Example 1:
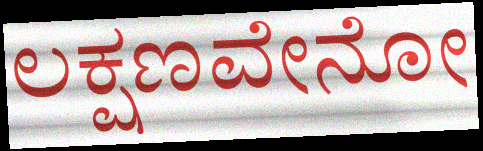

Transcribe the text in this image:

ಲಕ್ಷಣವೇನೋ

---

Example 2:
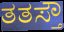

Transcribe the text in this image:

ತತಸ್ತೌ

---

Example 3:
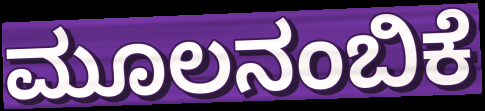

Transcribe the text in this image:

ಮೂಲನಂಬಿಕೆ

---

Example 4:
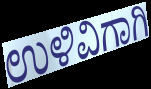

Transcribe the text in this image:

ಉಳಿವಿಗಾಗಿ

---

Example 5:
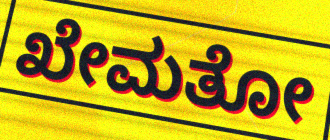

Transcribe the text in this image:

ಖೇಮತೋ